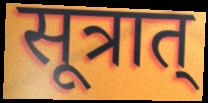
सूत्रात्